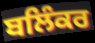
ਬਲਿੰਕਰ